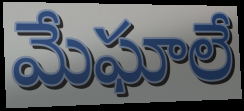
మేఘాలే